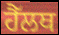
ਹੈੱਲਥ